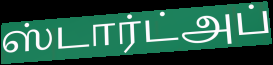
ஸ்டார்ட்அப்